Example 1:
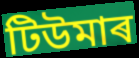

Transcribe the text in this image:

টিউমাৰ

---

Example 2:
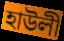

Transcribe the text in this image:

হাউলী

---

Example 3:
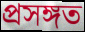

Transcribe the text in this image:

প্ৰসঙ্গত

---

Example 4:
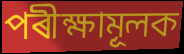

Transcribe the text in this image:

পৰীক্ষামূলক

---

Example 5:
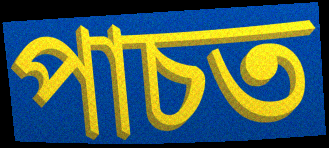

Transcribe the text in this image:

পাচত